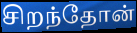
சிறந்தோன்